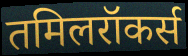
तमिलरॉकर्स